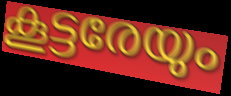
കൂട്ടരേയും